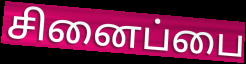
சினைப்பை